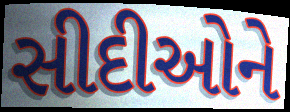
સીદીઓને